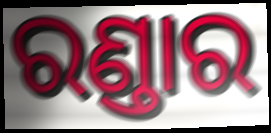
ରଣ୍ଡାର